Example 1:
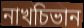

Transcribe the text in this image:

নাখচিভান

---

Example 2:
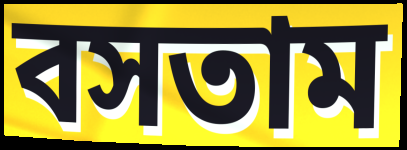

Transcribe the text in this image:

বসতাম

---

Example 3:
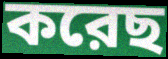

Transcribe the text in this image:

করেছ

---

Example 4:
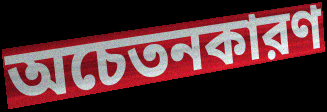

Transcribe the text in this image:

অচেতনকারণ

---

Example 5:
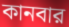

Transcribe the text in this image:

কানবার